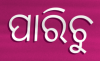
ପାରିଚୁ